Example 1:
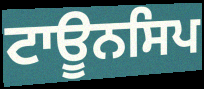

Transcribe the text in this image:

ਟਾਊਨਸਿਪ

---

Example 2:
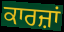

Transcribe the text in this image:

ਕਾਰਜ਼ਾਂ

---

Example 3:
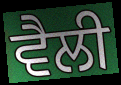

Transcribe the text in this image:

ਵੈਲੀ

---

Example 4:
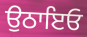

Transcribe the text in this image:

ਉਠਾਇਓ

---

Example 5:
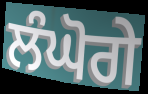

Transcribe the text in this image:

ਲੰਘੋਗੇ